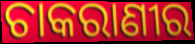
ଚାକରାଣୀର